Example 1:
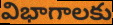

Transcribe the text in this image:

విభాగాలకు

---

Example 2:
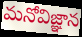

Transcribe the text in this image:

మనోవిజ్ఞాన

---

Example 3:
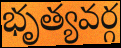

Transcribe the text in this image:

భృత్యవర్గ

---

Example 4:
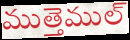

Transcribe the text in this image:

ముత్తెముల్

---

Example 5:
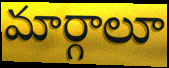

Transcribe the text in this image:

మార్గాలూ